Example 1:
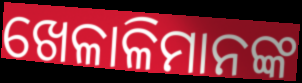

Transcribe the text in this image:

ଖେଳାଳିମାନଙ୍କ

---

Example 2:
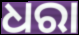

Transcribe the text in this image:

ଧରା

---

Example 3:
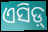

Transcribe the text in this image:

ଏସିଡ଼୍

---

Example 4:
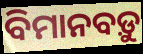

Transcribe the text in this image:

ବିମାନବଡ଼ୁ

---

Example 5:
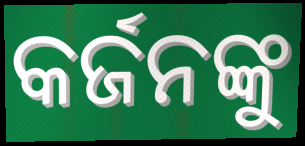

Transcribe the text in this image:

କର୍ଜନଙ୍କୁ